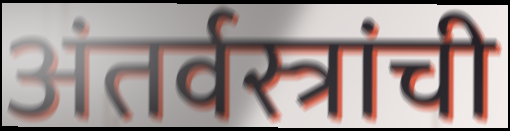
अंतर्वस्त्रांची